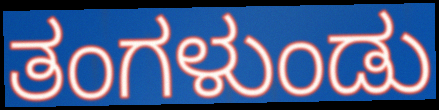
ತಂಗಳುಂಡು